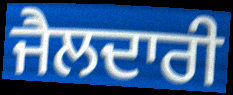
ਜੈਲਦਾਰੀ